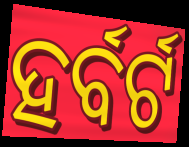
ହର୍ବର୍ଟ